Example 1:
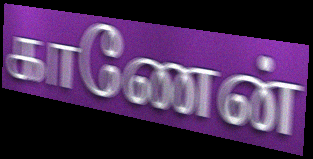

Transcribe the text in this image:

காணேன்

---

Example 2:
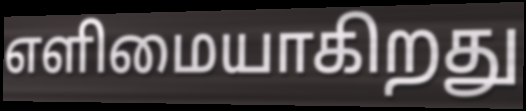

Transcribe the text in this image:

எளிமையாகிறது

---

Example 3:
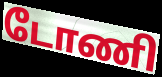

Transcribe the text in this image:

டோணி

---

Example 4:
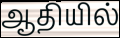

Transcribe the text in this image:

ஆதியில்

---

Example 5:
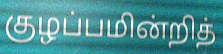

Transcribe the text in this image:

குழப்பமின்றித்